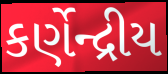
કર્ણેન્દ્રીય